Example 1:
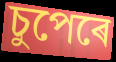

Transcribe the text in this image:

চুপেৰে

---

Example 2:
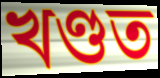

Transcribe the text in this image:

খণ্ডত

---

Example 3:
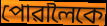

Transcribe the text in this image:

পোৱালৈকে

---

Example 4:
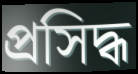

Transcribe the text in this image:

প্ৰসিদ্ধ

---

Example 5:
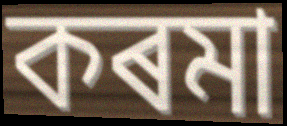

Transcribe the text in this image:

কৰমা